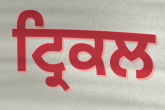
ਟ੍ਰਿਕਲ